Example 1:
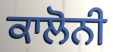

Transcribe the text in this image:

ਕਾਲੋਨੀ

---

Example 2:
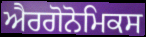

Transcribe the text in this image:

ਐਰਗੋਨੋਮਿਕਸ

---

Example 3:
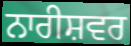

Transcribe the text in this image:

ਨਾਰੀਸ਼ਵਰ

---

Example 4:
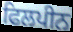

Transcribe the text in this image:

ਫਿਲਪੀਨ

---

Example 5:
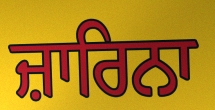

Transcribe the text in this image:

ਜ਼ਾਰਿਨਾ